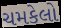
ચમકેલો